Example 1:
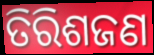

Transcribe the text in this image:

ତିରିଶଜଣ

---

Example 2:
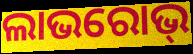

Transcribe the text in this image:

ଲାଭରୋଭ୍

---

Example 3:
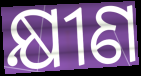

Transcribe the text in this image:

କ୍ଷୀଣ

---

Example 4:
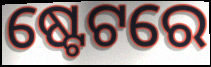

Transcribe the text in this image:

ଷ୍ଟେଟରେ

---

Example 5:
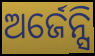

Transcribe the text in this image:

ଅର୍ଜେନ୍ସି